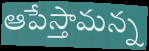
ఆపేస్తామన్న